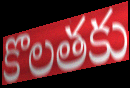
కొలతకు